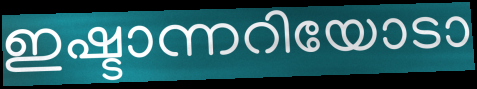
ഇഷ്ടാന്നറിയോടാ